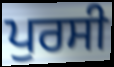
ਪੁਰਸੀ